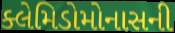
ક્લેમિડોમોનાસની